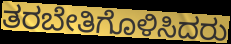
ತರಬೇತಿಗೊಳಿಸಿದರು